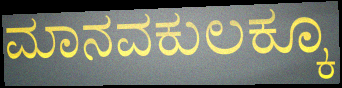
ಮಾನವಕುಲಕ್ಕೂ